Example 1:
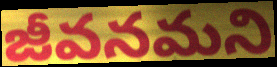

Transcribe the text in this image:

జీవనమని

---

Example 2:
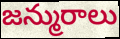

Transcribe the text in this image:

జన్మురాలు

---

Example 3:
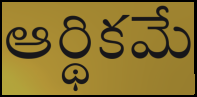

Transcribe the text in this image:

ఆర్థికమే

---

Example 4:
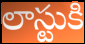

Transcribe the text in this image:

లాస్టుకి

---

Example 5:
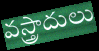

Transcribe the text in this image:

వస్త్రాదులు